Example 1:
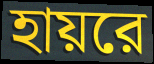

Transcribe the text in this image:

হায়রে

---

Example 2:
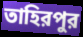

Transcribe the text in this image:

তাহিরপুর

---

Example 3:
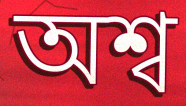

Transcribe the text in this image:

অশ্ব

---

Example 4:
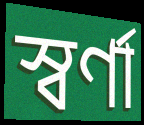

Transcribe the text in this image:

স্বর্ণা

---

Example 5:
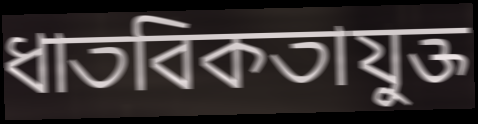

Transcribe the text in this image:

ধাতবিকতাযুক্ত